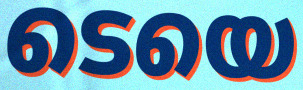
ടെയെ